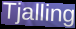
Tjalling